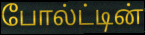
போல்ட்டின்